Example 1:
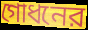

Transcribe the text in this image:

গোধনের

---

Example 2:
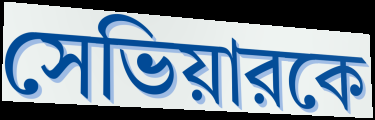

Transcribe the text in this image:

সেভিয়ারকে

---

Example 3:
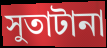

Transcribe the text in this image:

সুতাটানা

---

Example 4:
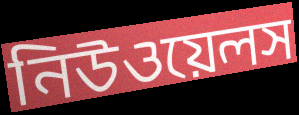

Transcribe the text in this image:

নিউওয়েলস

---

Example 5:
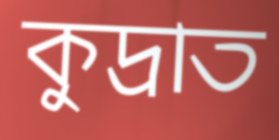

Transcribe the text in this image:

কুদ্রাত